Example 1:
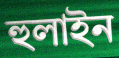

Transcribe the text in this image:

হুলাইন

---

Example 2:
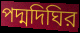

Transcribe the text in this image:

পদ্মদিঘির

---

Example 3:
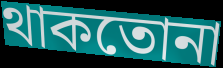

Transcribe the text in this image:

থাকতোনা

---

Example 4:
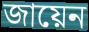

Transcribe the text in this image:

জায়েন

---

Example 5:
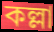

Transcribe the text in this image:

কল্লা